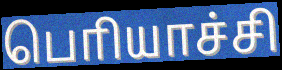
பெரியாச்சி